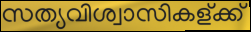
സത്യവിശ്വാസികള്ക്ക്